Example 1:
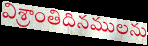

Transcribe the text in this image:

విశ్రాంతిదినములను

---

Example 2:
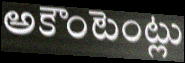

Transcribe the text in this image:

అకౌంటెంట్లు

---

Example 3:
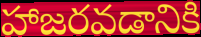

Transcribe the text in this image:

హాజరవడానికి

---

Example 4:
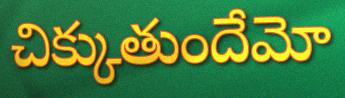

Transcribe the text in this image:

చిక్కుతుందేమో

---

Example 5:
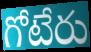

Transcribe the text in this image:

గోటేరు